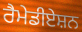
ਰੈਮੇਡੀਏਸ਼ਨ